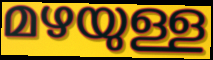
മഴയുള്ള